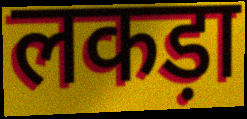
लकड़ा